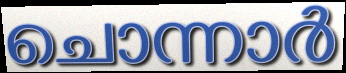
ചൊന്നാർ